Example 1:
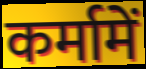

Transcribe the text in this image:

कर्मामें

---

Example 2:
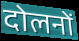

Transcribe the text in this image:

दोलनों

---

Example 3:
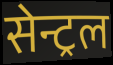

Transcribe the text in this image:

सेन्ट्रल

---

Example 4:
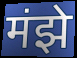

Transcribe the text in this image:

मंझे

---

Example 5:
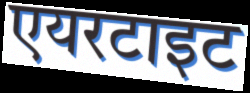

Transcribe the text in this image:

एयरटाइट